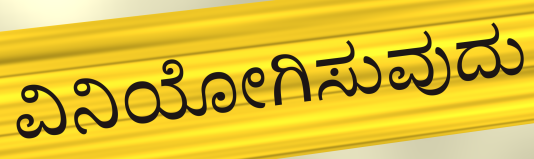
ವಿನಿಯೋಗಿಸುವುದು